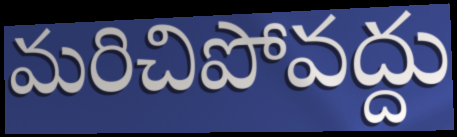
మరిచిపోవద్దు